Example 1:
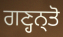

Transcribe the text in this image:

ਗਣ੍ਹਨ੍ਤੋ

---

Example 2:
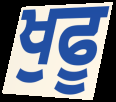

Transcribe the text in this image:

ਖੁਫੂ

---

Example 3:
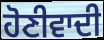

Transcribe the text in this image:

ਹੋਣੀਵਾਦੀ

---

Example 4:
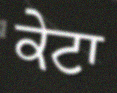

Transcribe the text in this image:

ਕੇਟਾ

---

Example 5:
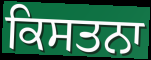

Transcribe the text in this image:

ਕਿਸਤਨਾ